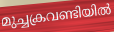
മുച്ചക്രവണ്ടിയിൽ